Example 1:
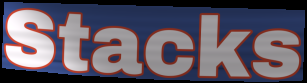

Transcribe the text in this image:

Stacks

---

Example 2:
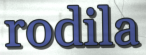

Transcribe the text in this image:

rodila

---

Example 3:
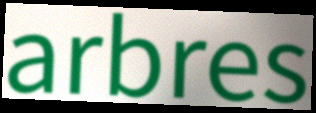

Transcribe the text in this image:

arbres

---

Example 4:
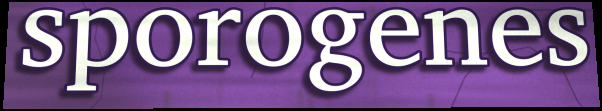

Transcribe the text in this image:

sporogenes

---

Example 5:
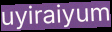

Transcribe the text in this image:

uyiraiyum